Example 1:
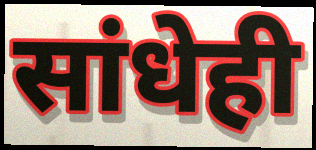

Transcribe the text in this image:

सांधेही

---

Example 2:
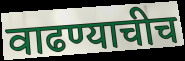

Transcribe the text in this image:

वाढण्याचीच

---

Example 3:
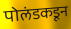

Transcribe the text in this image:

पोलंडकडून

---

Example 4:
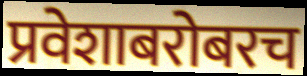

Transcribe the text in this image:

प्रवेशाबरोबरच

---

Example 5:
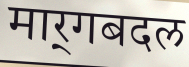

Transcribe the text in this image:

मार्गबदल